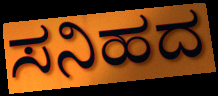
ಸನಿಹದ